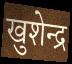
खुशेन्द्र